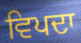
ਵਿਪਦਾ